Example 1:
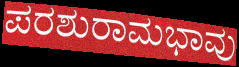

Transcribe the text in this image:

ಪರಶುರಾಮಭಾವು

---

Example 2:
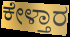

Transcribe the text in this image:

ಕೇಳ್ತಾರ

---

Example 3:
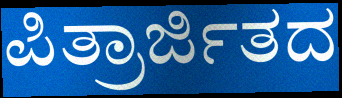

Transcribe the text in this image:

ಪಿತ್ರಾರ್ಜಿತದ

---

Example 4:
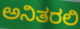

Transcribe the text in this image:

ಅನಿತರಲಿ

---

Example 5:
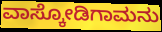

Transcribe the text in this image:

ವಾಸ್ಕೋಡಿಗಾಮನು